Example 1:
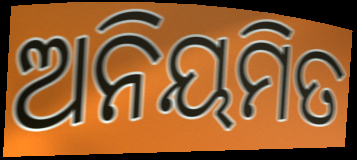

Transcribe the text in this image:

ଅନିୟମିତ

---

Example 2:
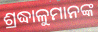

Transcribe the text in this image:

ଶ୍ରଦ୍ଧାଳୁମାନଙ୍କ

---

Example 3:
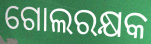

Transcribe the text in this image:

ଗୋଲରକ୍ଷକ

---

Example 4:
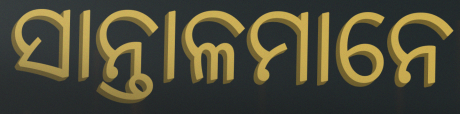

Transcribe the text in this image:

ସାନ୍ତାଳମାନେ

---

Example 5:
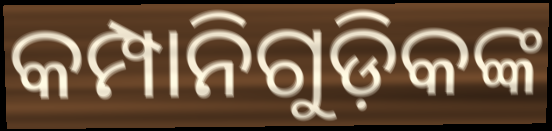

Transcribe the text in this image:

କମ୍ପାନିଗୁଡ଼ିକଙ୍କ